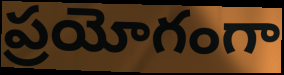
ప్రయోగంగా